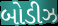
બોડીઝ